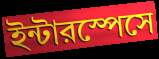
ইন্টারস্পেসে